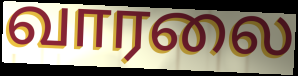
வாரலை